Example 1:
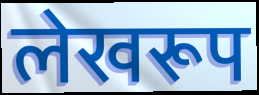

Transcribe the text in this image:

लेखरूप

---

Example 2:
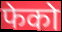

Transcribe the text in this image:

फेको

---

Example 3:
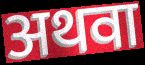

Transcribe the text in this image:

अथवा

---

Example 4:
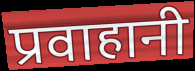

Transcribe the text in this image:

प्रवाहानी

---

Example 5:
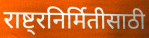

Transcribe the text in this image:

राष्ट्रनिर्मितीसाठी